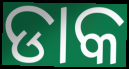
ଡାକ